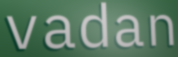
vadan